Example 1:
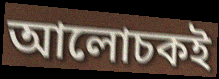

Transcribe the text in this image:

আলোচকই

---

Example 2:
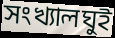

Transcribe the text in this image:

সংখ্যালঘুই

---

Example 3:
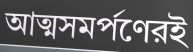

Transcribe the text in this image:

আত্মসমর্পণেরই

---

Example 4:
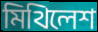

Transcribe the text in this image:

মিথিলেশ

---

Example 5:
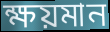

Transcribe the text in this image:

ক্ষয়মান